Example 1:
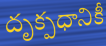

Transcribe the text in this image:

దృక్పధానికీ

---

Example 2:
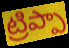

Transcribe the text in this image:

ట్రిప్పా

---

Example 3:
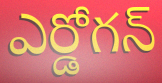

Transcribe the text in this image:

ఎర్డోగన్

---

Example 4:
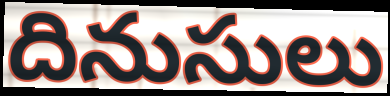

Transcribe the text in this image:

దినుసులు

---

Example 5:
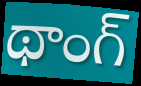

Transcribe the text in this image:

థాంగ్